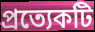
প্রত্যেকটি